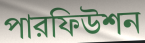
পারফিউশন